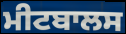
ਮੀਟਬਾਲਸ